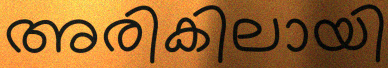
അരികിലായി